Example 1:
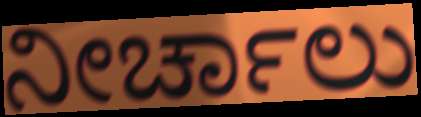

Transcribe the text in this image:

ನೀರ್ಚಾಲು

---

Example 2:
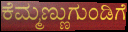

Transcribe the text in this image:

ಕೆಮ್ಮಣ್ಣುಗುಂಡಿಗೆ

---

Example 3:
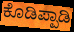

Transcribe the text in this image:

ಕೊಡಿಪ್ಪಾಡಿ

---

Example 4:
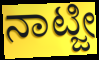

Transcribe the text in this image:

ನಾಟ್ಜೀ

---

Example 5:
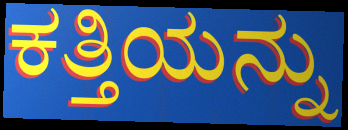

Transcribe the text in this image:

ಕತ್ತಿಯನ್ನು